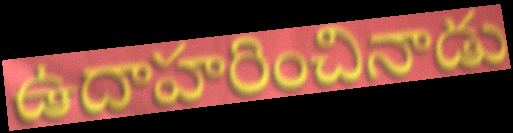
ఉదాహరించినాడు